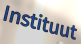
Instituut